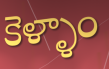
కెళ్ళాం